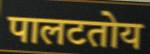
पालटतोय